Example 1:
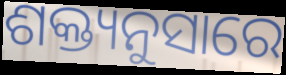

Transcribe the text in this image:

ଶକ୍ତ୍ୟନୁସାରେ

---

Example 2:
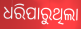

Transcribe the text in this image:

ଧରିପାରୁଥିଲା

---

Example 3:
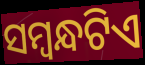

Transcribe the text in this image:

ସମ୍ୱନ୍ଧଟିଏ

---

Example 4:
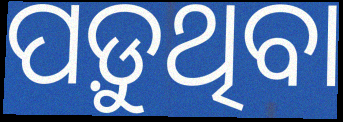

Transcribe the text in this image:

ପଡ଼ୁଥିବା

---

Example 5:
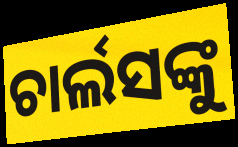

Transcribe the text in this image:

ଚାର୍ଲସଙ୍କୁ